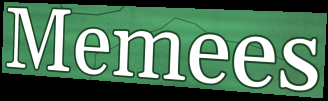
Memees